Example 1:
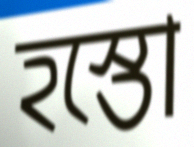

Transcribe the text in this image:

হস্তো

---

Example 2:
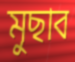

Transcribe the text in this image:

মুছাব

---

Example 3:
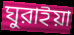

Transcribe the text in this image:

ঘুরাইয়া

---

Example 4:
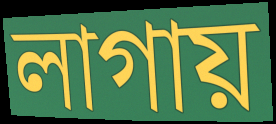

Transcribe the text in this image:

লাগায়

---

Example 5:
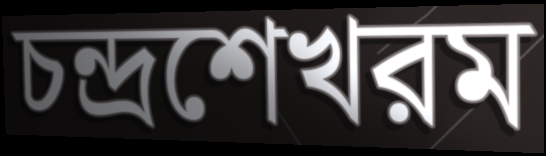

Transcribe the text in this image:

চন্দ্রশেখরম